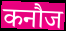
कनौज